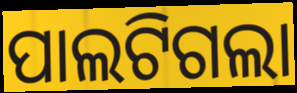
ପାଲଟିଗଲା